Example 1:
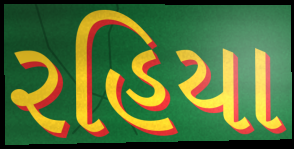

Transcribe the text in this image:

રહિયા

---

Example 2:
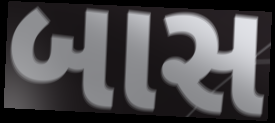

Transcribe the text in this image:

બાસ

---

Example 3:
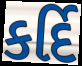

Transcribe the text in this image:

કર્દિ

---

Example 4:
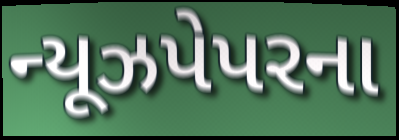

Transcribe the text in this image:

ન્યૂઝપેપરના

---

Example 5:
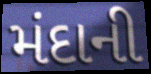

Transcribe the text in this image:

મંદાની